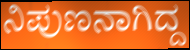
ನಿಪುಣನಾಗಿದ್ದ